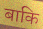
बाकि